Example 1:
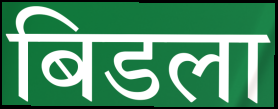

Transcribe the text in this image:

बिडला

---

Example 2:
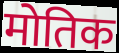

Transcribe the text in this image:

मोतिक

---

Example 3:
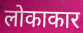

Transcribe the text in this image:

लोकाकार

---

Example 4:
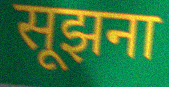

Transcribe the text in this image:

सूझना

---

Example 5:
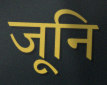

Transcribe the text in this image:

जूनि